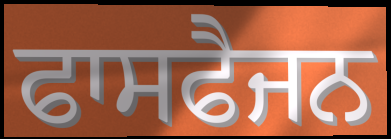
ਫਾਸਫੈਜਨ